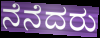
ನೆನೆದರು